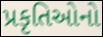
પ્રકૃતિઓનો